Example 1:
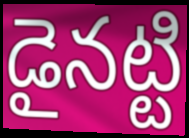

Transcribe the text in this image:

డైనట్టి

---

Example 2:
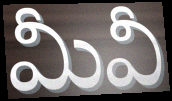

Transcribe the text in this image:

మీవీ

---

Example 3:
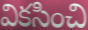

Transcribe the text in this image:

వికసించి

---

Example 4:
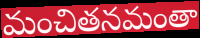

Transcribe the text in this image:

మంచితనమంతా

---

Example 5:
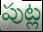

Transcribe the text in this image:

పుట్ల